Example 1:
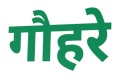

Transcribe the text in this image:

गौहरे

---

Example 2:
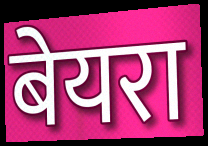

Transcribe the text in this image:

बेयरा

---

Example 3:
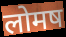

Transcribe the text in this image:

लोमष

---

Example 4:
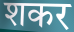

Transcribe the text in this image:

शकर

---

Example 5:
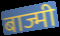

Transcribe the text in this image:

बाज्मी